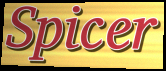
Spicer